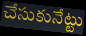
చేసుకునేట్టు